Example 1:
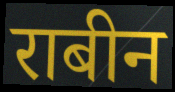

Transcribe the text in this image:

राबीन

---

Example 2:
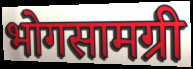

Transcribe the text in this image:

भोगसामग्री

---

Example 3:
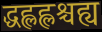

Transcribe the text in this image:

द्धह्लह्लश्चह्य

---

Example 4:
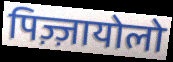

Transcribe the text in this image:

पिज़्ज़ायोलो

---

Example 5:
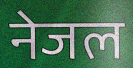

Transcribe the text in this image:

नेजल